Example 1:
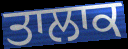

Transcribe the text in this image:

ਤਾਲਾਕ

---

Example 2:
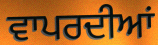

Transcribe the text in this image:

ਵਾਪਰਦੀਆਂ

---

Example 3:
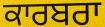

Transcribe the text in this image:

ਕਾਰਬਰਾ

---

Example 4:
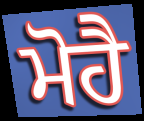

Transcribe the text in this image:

ਮੋਹੈ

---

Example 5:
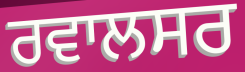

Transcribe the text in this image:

ਰਵਾਲਸਰ